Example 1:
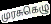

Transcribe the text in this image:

முரசுகெழு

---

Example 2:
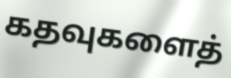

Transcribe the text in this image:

கதவுகளைத்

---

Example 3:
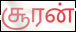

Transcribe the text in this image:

சூரன்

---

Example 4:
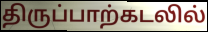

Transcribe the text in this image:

திருப்பாற்கடலில்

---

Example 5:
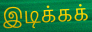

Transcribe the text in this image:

இடிக்கக்